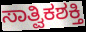
ಸಾತ್ವಿಕಶಕ್ತಿ